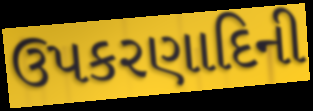
ઉપકરણાદિની